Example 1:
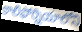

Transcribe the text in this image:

కాలిఫోర్నియాలోని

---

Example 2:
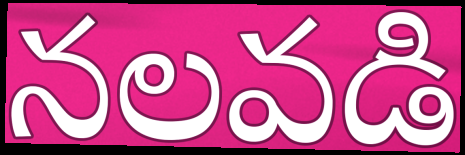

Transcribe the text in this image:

నలవడి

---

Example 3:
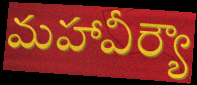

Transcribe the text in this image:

మహావీర్యౌ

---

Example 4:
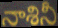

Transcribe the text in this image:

నాశినీ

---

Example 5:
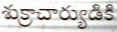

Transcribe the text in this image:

శుక్రాచార్యుడికి